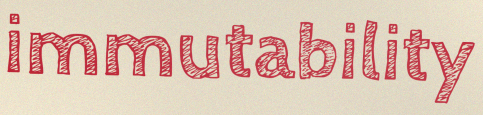
immutability